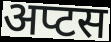
अप्टस